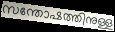
സന്തോഷത്തിനുള്ള